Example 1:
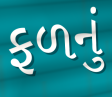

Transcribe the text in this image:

ફળનું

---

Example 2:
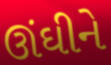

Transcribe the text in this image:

ઊંઘીને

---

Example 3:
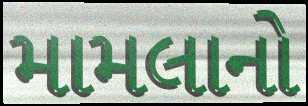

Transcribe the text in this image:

મામલાનો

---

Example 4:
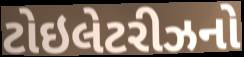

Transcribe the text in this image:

ટોઇલેટરીઝનો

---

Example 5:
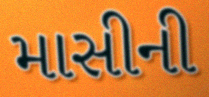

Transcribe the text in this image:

માસીની